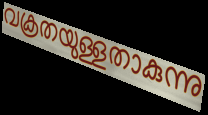
വക്രതയുള്ളതാകുന്നു